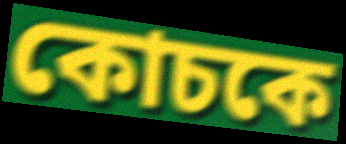
কোচকে